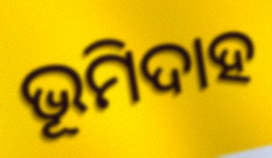
ଭୂମିଦାହ